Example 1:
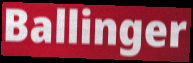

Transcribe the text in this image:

Ballinger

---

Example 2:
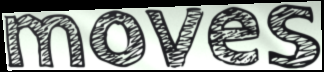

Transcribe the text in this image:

moves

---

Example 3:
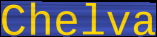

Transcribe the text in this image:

Chelva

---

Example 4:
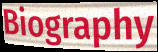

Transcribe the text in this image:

Biography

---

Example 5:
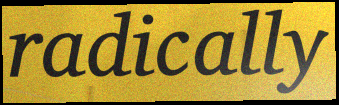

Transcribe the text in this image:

radically